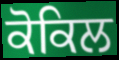
ਕੋਕਿਲ